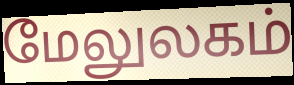
மேலுலகம்